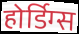
होर्डिग्स